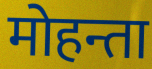
मोहन्ता